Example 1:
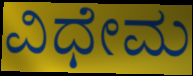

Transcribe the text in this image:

ವಿಧೇಮ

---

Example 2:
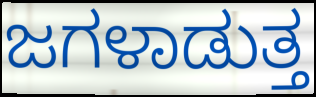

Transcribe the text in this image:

ಜಗಳಾಡುತ್ತ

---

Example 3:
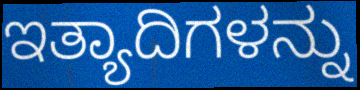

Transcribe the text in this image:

ಇತ್ಯಾದಿಗಳನ್ನು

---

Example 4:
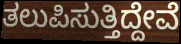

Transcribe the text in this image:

ತಲುಪಿಸುತ್ತಿದ್ದೇವೆ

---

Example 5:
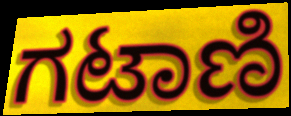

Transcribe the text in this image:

ಗಟಾಣಿ